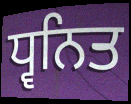
ਧ੍ਵਨਿਤ